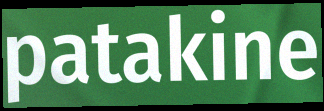
patakine